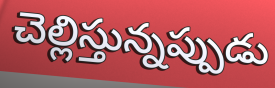
చెల్లిస్తున్నప్పుడు